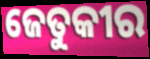
ଜେତୁକୀର